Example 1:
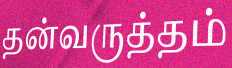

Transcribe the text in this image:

தன்வருத்தம்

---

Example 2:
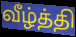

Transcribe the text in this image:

வீழ்த்தி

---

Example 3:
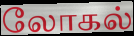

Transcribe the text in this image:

லோகல்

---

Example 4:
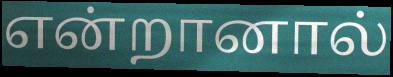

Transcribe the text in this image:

என்றானால்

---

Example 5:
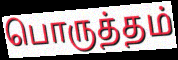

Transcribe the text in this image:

பொருத்தம்